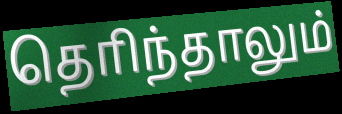
தெரிந்தாலும்